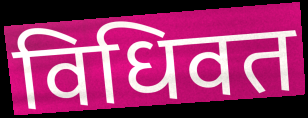
विधिवत